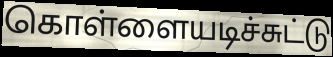
கொள்ளையடிச்சுட்டு